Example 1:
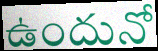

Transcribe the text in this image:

ఉందునో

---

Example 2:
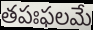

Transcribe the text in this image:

తపఃఫలమే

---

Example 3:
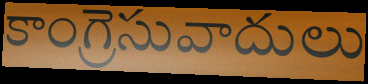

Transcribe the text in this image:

కాంగ్రెసువాదులు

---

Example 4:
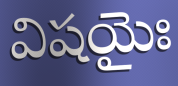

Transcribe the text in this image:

విషయైః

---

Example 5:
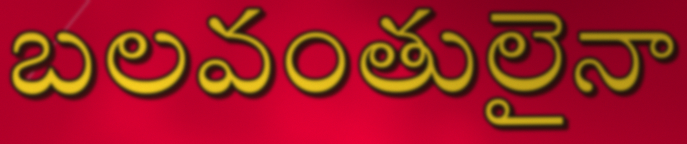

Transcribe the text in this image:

బలవంతులైనా